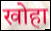
खोहा